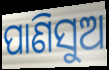
ପାଣିସୁଅ